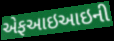
એફઆઇઆઇની